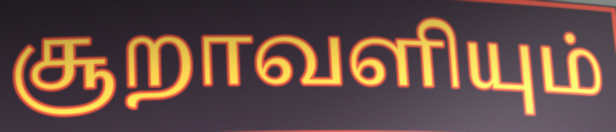
சூறாவளியும்